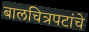
बालचित्रपटांचे